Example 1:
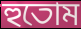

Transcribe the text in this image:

হুতোম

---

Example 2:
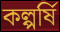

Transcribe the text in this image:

কল্পর্ষি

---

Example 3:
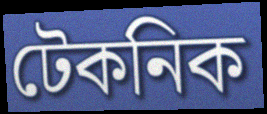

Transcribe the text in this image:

টেকনিক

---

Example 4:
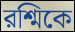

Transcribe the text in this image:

রশ্মিকে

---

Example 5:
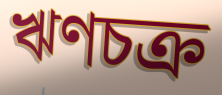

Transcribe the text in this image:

ঋণচক্র